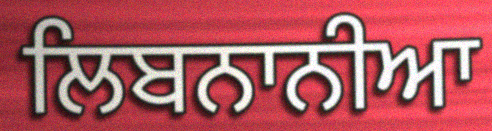
ਲਿਬਨਾਨੀਆ